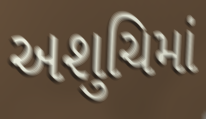
અશુચિમાં